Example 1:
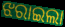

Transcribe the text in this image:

ଝରାଇଲା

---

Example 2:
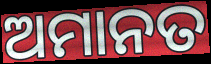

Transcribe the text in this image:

ଅମାନତ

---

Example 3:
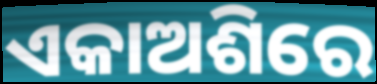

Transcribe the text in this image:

ଏକାଅଶିରେ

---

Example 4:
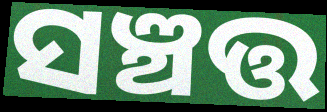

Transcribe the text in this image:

ସଞ୍ଚତ୍ତ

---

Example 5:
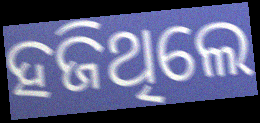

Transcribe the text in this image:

ହଜିଥିଲେ